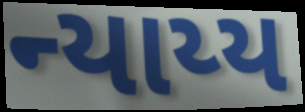
ન્યાય્ય